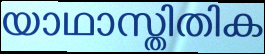
യാഥാസ്തിതിക